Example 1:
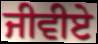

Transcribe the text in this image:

ਜੀਵੀਏ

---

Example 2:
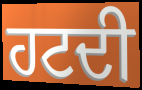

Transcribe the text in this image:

ਹਟਦੀ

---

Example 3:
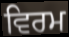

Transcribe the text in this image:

ਵਿਰਮ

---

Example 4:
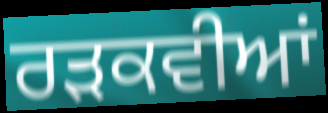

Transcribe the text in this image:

ਰੜਕਵੀਆਂ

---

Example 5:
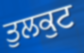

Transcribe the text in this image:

ਤੁਲਕੁਟ